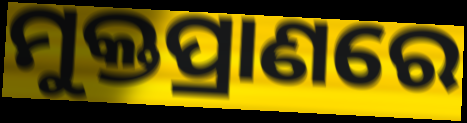
ମୁକ୍ତପ୍ରାଣରେ